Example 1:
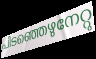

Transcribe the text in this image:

പിടഞ്ഞെഴുനേറ്റു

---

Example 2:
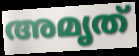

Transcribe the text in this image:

അമൃത്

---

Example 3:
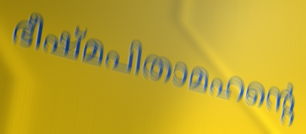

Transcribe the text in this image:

ഭീഷ്മപിതാമഹന്റെ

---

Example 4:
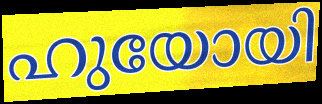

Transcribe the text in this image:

ഹുയോയി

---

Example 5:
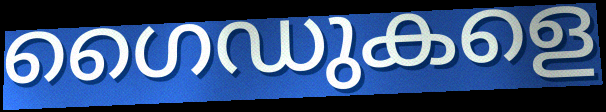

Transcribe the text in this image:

ഗൈഡുകളെ